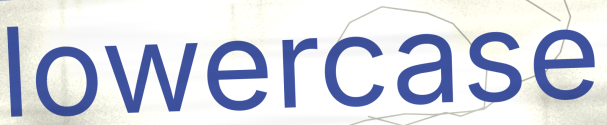
lowercase